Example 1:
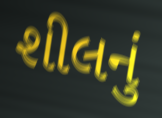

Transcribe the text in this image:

શીલનું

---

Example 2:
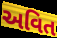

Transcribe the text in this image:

અવિત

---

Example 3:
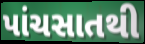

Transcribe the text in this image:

પાંચસાતથી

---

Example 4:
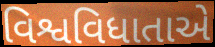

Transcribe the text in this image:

વિશ્વવિધાતાએ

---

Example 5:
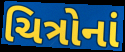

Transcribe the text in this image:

ચિત્રોનાં